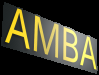
AMBA